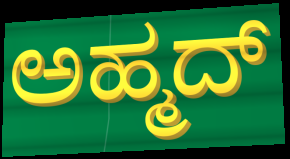
ಅಹ್ಮದ್